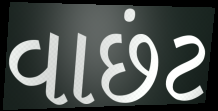
વાછંટ